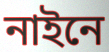
নাইনে